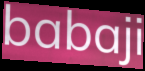
babaji